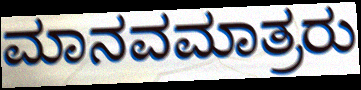
ಮಾನವಮಾತ್ರರು